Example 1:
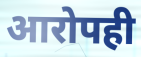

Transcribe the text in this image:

आरोपही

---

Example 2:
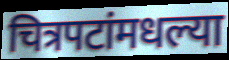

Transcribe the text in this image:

चित्रपटांमधल्या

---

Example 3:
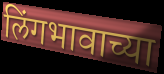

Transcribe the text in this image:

लिंगभावाच्या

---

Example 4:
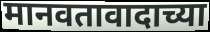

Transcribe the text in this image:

मानवतावादाच्या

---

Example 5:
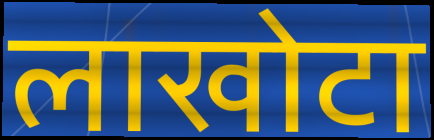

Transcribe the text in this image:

लाखोटा